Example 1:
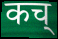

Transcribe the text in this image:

कच्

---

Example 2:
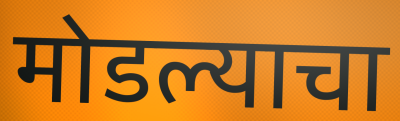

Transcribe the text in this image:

मोडल्याचा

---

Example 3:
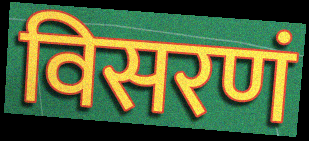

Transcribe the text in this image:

विसरणं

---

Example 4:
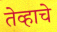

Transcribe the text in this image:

तेव्हाचे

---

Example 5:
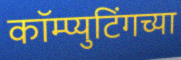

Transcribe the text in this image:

कॉम्प्युटिंगच्या